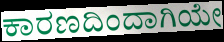
ಕಾರಣದಿಂದಾಗಿಯೇ